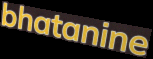
bhatanine